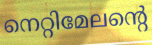
നെറ്റിമേലന്റെ